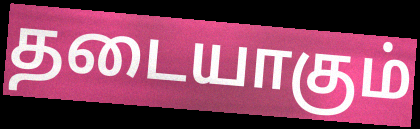
தடையாகும்